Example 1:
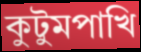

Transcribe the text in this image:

কুটুমপাখি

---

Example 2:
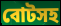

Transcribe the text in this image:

বোটসহ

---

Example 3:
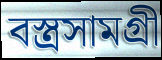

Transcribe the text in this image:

বস্ত্রসামগ্রী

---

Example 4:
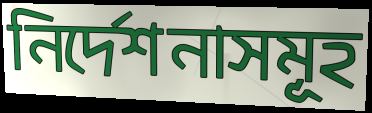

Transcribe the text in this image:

নির্দেশনাসমূহ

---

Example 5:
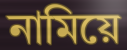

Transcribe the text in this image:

নামিয়ে